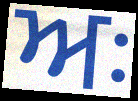
ਅਃ